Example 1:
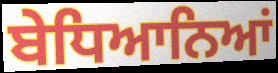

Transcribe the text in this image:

ਬੇਧਿਆਨਿਆਂ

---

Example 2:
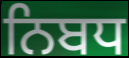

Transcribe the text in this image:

ਨਿਬਧ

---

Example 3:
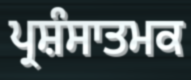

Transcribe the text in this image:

ਪ੍ਰਸ਼ੰਸਾਤਮਕ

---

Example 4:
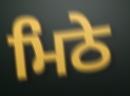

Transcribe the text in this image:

ਮਿਠੇ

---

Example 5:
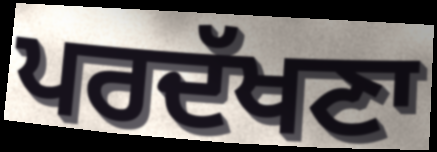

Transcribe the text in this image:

ਪਰਦੱਖਣਾ